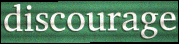
discourage